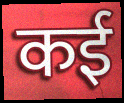
कई